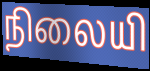
நிலையி